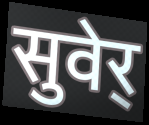
सुवेर्